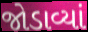
જોડાવ્યાં